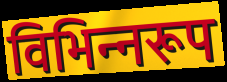
विभिन्नरूप